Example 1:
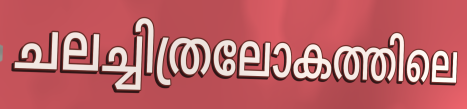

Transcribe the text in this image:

ചലച്ചിത്രലോകത്തിലെ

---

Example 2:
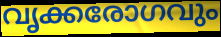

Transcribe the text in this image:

വൃക്കരോഗവും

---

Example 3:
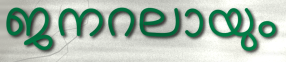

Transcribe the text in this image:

ജനറലായും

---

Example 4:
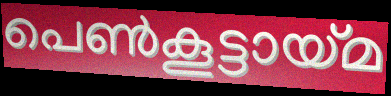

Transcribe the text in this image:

പെൺകൂട്ടായ്മ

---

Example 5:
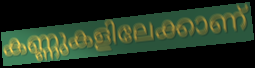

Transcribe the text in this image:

കണ്ണുകളിലേക്കാണ്